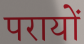
परायों